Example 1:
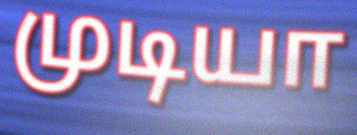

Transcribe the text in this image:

முடியா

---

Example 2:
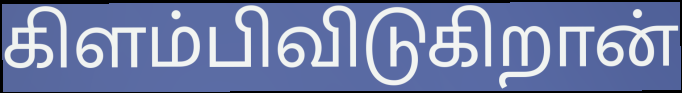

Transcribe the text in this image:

கிளம்பிவிடுகிறான்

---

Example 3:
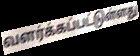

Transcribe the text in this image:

வளர்க்கப்பட்டுள்ளது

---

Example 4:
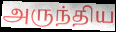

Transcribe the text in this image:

அருந்திய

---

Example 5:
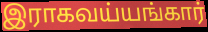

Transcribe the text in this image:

இராகவய்யங்கார்